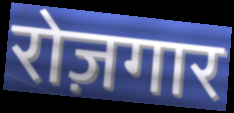
रोज़गार